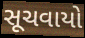
સૂચવાયો